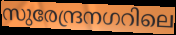
സുരേന്ദ്രനഗറിലെ